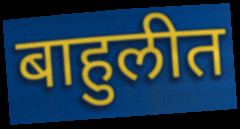
बाहुलीत